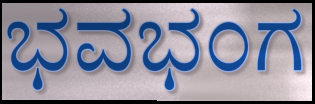
ಭವಭಂಗ